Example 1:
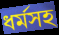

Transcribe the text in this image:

ধর্মসহ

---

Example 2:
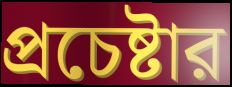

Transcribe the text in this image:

প্রচেষ্টার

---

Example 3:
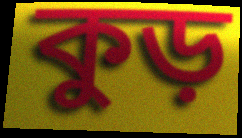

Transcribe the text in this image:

কুড়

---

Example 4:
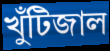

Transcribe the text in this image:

খুঁটিজাল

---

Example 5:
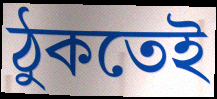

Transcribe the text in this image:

ঠুকতেই